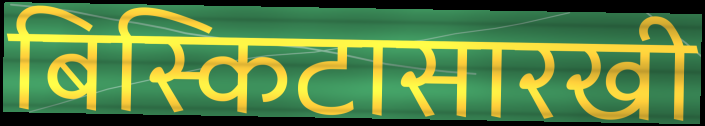
बिस्किटासारखी